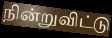
நின்றுவிட்டு